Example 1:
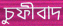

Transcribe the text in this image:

চুফীবাদ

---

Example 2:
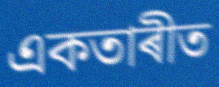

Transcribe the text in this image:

একতাৰীত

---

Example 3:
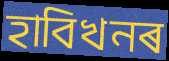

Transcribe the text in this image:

হাবিখনৰ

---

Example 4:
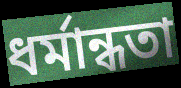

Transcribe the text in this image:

ধৰ্মান্ধতা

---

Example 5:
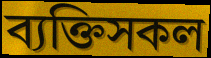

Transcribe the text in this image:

ব্যক্তিসকল